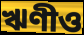
ঋণীও